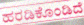
ಹರಡಿಕೊಂಡಿದೆ